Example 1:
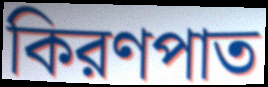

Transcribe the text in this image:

কিরণপাত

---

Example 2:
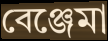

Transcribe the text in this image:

বেঞ্জেমা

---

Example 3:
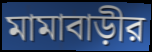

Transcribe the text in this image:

মামাবাড়ীর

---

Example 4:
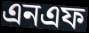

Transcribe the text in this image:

এনএফ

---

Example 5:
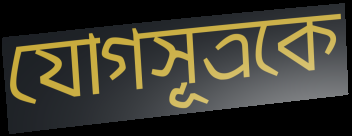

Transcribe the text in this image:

যোগসূত্রকে